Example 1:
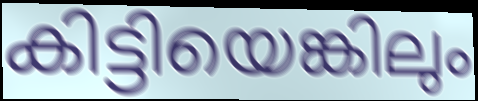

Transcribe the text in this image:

കിട്ടിയെങ്കിലും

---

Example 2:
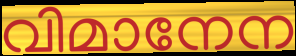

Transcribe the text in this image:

വിമാനേന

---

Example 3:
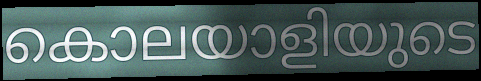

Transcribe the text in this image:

കൊലയാളിയുടെ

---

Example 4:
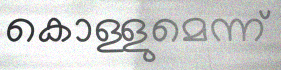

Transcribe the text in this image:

കൊള്ളുമെന്ന്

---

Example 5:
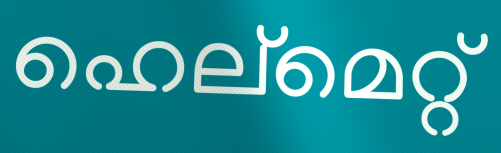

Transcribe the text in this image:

ഹെല്മെറ്റ്